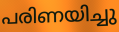
പരിണയിച്ചു